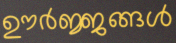
ഊർജ്ജങ്ങൾ